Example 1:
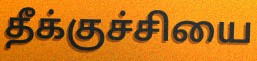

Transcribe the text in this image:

தீக்குச்சியை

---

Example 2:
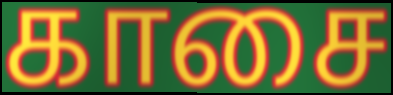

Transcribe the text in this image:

காசை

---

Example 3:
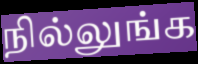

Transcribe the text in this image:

நில்லுங்க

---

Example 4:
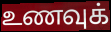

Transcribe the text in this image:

உணவுக்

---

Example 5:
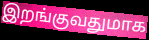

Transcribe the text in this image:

இறங்குவதுமாக